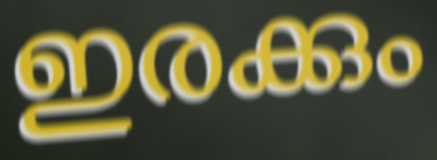
ഇരക്കും